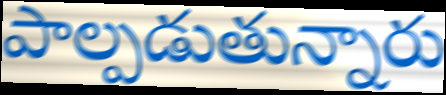
పాల్పడుతున్నారు